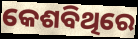
କେଶବିଥିରେ